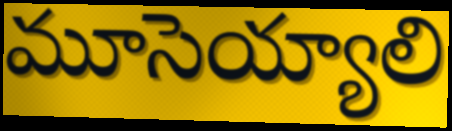
మూసెయ్యాలి